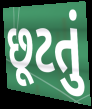
છૂટતું